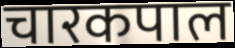
चारकपाल